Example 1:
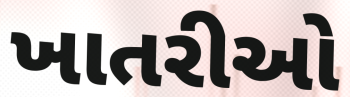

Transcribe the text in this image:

ખાતરીઓ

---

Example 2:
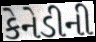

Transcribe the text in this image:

કેનેડીની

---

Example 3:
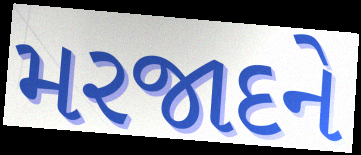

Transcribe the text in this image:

મરજાદને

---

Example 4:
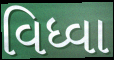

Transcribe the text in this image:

વિધ્વા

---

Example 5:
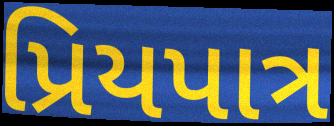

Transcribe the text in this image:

પ્રિયપાત્ર